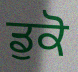
ਡੁਕੋ